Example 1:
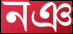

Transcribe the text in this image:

নঞ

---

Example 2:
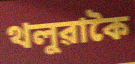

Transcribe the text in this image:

থলুৱাকৈ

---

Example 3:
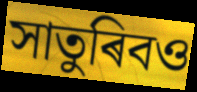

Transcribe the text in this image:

সাতুৰিবও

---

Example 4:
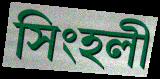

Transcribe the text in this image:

সিংহলী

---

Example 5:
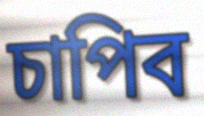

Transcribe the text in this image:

চাপিব